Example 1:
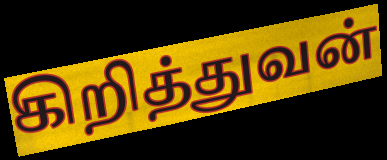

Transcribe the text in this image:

கிறித்துவன்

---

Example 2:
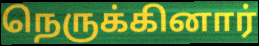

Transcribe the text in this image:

நெருக்கினார்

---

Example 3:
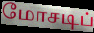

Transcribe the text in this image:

மோசடிப்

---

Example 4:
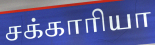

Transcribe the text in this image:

சக்காரியா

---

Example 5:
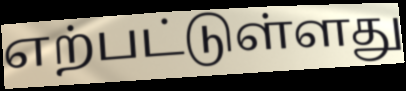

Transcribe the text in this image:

எற்பட்டுள்ளது